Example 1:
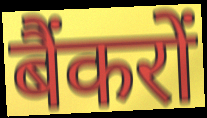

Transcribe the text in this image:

बैंकरों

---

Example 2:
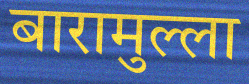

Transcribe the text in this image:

बारामुल्‍ला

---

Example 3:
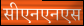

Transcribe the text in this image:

सीएनएनएस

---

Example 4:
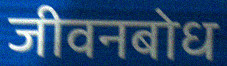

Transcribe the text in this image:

जीवनबोध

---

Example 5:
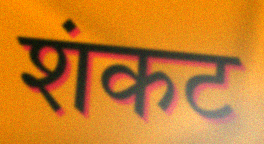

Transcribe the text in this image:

शंकट